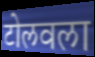
टोलवला